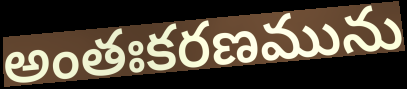
అంతఃకరణమును